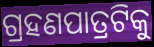
ଗ୍ରହଣପାତ୍ରଟିକୁ